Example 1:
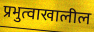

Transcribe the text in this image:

प्रभुत्वाखालील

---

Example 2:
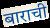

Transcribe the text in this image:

बाराची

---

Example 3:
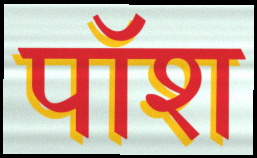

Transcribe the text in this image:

पॉश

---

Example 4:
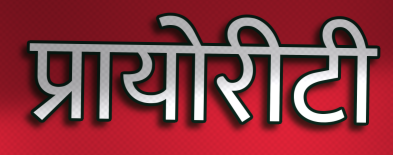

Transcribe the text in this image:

प्रायोरीटी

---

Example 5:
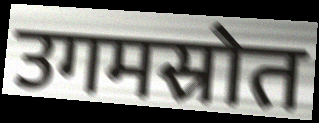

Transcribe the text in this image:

उगमस्रोत